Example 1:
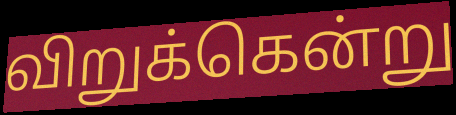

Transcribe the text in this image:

விறுக்கென்று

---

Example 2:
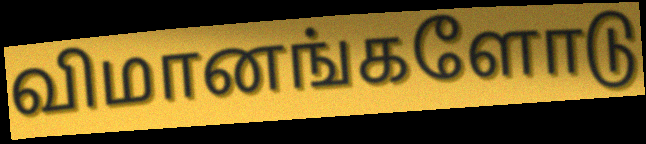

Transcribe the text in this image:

விமானங்களோடு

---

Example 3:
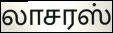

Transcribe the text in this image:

லாசரஸ்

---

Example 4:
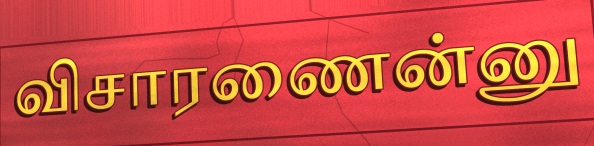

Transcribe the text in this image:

விசாரணைன்னு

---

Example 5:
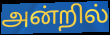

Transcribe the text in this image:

அன்றில்